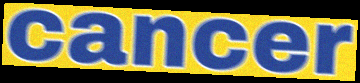
cancer